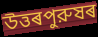
উত্তৰপুৰুষৰ